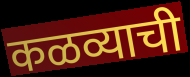
कळव्याची